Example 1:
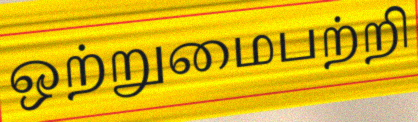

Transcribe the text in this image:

ஒற்றுமைபற்றி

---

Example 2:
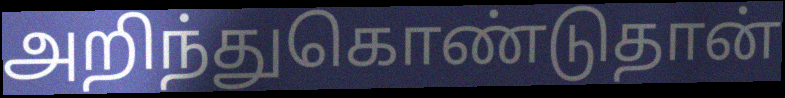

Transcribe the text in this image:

அறிந்துகொண்டுதான்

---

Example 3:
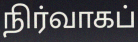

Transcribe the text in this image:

நிர்வாகப்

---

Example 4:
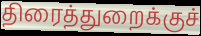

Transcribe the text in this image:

திரைத்துறைக்குச்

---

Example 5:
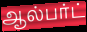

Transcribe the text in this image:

ஆல்பர்ட்